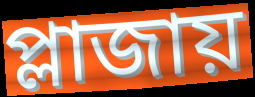
প্লাজায়